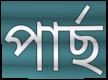
পাৰ্ছ